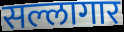
सल्‍लागार